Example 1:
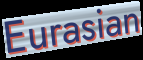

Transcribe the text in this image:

Eurasian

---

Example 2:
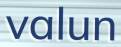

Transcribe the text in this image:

valun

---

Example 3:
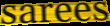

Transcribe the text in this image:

sarees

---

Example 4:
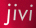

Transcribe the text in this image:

jivi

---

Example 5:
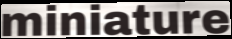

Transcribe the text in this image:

miniature